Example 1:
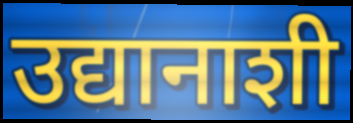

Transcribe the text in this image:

उद्यानाशी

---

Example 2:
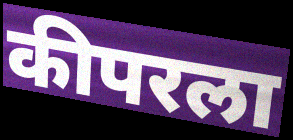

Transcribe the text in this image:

कीपरला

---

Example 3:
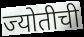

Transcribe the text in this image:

ज्योतीची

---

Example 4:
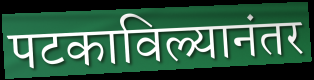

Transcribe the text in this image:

पटकाविल्यानंतर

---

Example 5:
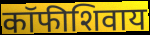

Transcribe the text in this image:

कॉफीशिवाय